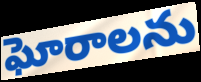
ఘోరాలను